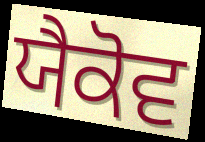
ਯੈਕੋਵ